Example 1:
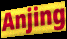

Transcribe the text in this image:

Anjing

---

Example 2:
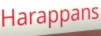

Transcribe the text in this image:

Harappans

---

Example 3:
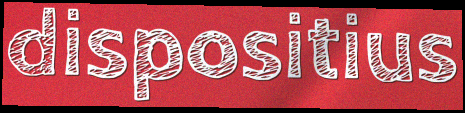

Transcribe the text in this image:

dispositius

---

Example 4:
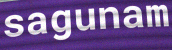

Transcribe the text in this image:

sagunam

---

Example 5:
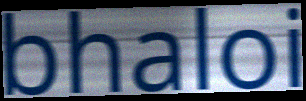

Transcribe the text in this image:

bhaloi